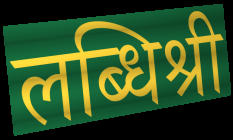
लब्धिश्री